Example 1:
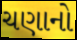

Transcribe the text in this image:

ચણાનો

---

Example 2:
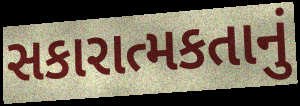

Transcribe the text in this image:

સકારાત્મકતાનું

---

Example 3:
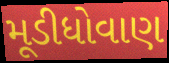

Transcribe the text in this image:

મૂડીધોવાણ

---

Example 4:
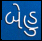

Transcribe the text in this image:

બેહુ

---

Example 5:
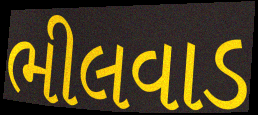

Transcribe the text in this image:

ભીલવાડ